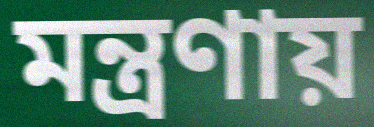
মন্ত্রণায়